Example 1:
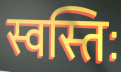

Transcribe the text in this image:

स्वस्तिः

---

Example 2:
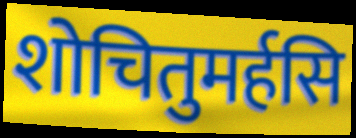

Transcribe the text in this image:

शोचितुमर्हसि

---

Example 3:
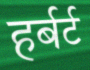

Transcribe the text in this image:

हर्बर्ट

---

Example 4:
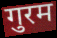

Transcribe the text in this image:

गुरम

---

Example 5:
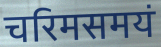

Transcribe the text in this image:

चरिमसमयं